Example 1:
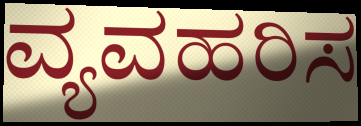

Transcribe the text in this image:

ವ್ಯವಹರಿಸ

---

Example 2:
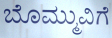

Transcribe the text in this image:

ಬೊಮ್ಮುವಿಗೆ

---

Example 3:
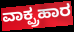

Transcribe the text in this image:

ವಾಕ್ಪ್ರಹಾರ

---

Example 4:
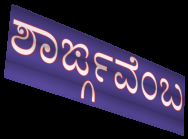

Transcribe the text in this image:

ಶಾರ್ಙ್ಗವೆಂಬ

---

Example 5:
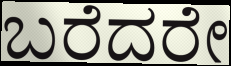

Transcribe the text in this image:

ಬರೆದರೇ